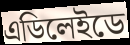
এডিলেইডে